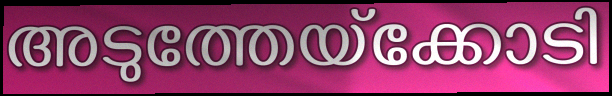
അടുത്തേയ്‌ക്കോടി